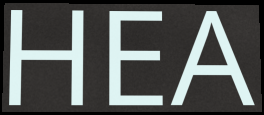
HEA